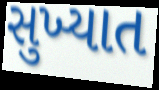
સુખ્યાત